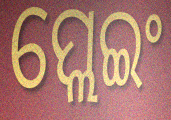
ପ୍ଲେଇଂ